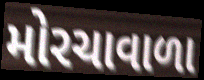
મોરચાવાળા